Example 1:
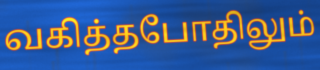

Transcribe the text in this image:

வகித்தபோதிலும்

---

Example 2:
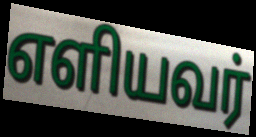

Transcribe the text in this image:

எளியவர்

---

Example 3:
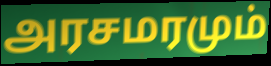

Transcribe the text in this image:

அரசமரமும்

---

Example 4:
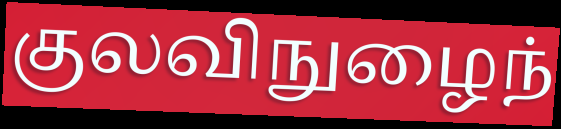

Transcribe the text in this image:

குலவிநுழைந்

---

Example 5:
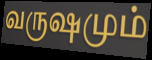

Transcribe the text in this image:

வருஷமும்